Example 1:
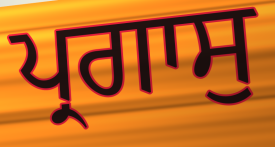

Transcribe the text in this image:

ਪ੍ਰਗਾਸੁ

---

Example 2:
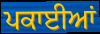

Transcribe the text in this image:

ਪਕਾਈਆਂ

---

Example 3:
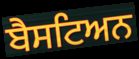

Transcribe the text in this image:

ਬੈਸਟਿਅਨ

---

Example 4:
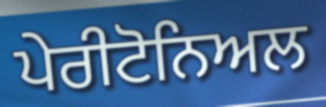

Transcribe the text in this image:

ਪੇਰੀਟੋਨਿਅਲ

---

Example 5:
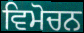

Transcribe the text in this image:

ਵਿਮੋਚਨ